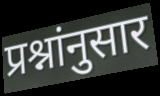
प्रश्नांनुसार